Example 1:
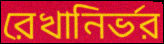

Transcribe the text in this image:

রেখানির্ভর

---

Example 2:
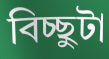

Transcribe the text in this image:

বিচ্ছুটা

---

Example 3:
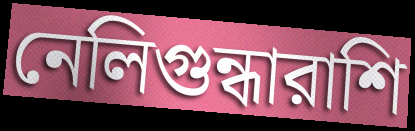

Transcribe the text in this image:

নেলিগুন্ধারাশি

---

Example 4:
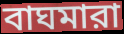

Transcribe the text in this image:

বাঘমারা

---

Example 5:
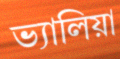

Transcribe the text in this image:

ভ্যালিয়া